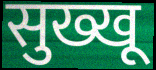
सुख्खू